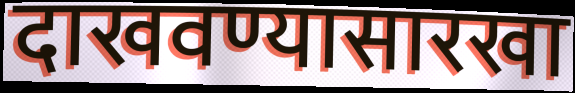
दाखवण्यासारखा